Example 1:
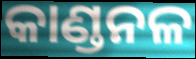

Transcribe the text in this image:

କାଣ୍ଡନଳ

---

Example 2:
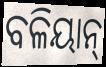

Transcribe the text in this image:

ବଳିୟାନ୍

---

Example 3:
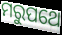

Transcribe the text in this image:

ମରୁପଥେ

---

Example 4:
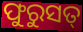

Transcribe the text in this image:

ଫୁରୁସତ୍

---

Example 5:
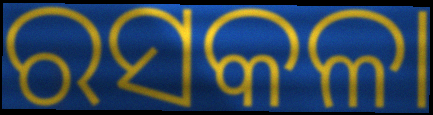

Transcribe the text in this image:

ରସକଳା